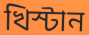
খিস্টান